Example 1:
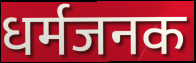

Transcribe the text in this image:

धर्मजनक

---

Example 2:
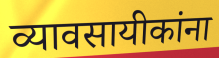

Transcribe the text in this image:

व्यावसायीकांना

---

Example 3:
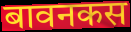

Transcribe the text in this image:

बावनकस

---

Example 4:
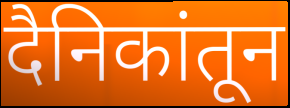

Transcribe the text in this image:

दैनिकांतून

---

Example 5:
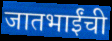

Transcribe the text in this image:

जातभाईंची